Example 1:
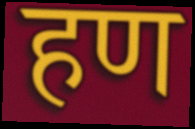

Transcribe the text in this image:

हण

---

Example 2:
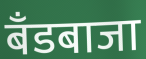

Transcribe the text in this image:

बँडबाजा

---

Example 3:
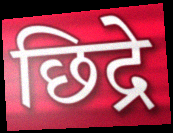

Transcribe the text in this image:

छिद्रे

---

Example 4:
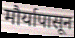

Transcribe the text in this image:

मौर्यापासून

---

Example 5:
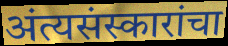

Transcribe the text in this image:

अंत्यसंस्कारांचा